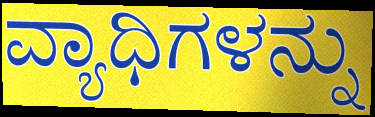
ವ್ಯಾಧಿಗಳನ್ನು